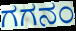
ಗಗನಂ